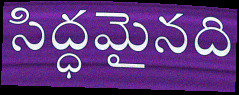
సిద్ధమైనది